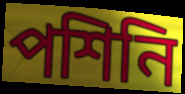
পশিনি